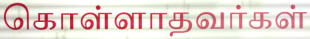
கொள்ளாதவர்கள்